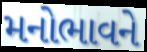
મનોભાવને